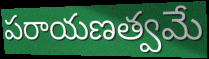
పరాయణత్వమే